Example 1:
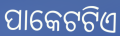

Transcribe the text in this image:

ପାକେଟଟିଏ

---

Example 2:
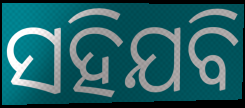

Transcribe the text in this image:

ସହିଯବି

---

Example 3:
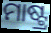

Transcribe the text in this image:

ମାଷ୍ଟ୍ର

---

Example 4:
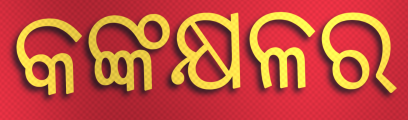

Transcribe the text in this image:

କଙ୍କକ୍ଷଳର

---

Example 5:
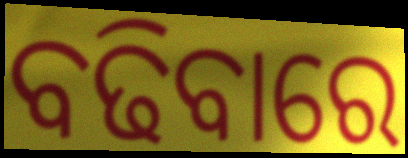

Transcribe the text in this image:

ବଢିବାରେ